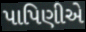
પાપિણીએ